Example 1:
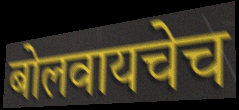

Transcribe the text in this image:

बोलवायचेच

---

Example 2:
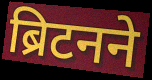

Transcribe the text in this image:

ब्रिटनने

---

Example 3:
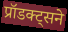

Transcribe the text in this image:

प्रॉडक्ट्सने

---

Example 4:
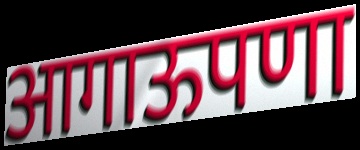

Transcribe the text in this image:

आगाऊपणा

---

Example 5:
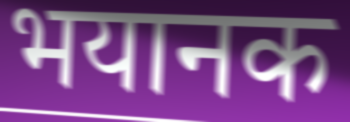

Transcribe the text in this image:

भयानक